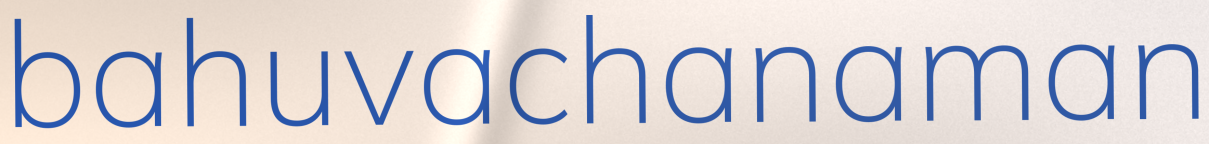
bahuvachanaman